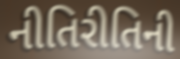
નીતિરીતિની